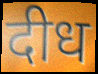
दीध